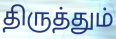
திருத்தும்